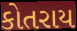
કોતરાય